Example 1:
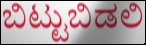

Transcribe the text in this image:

ಬಿಟ್ಟುಬಿಡಲಿ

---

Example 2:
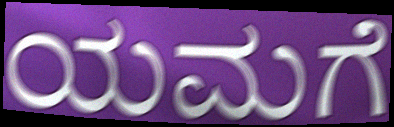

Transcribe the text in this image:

ಯಮಗೆ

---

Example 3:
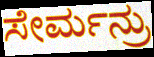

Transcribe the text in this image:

ಸೇರ್ಮನ್ರು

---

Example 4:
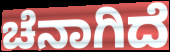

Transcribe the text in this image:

ಚೆನಾಗಿದೆ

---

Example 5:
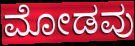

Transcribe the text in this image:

ಮೋಡವು